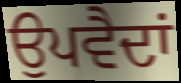
ਉਪਵੈਦਾਂ